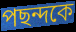
পছন্দকে